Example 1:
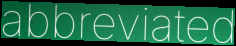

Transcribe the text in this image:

abbreviated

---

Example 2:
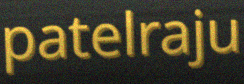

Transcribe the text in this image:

patelraju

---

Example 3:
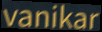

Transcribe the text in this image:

vanikar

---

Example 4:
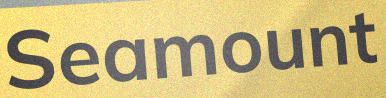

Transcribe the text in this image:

Seamount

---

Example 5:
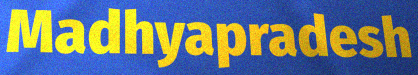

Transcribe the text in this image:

Madhyapradesh